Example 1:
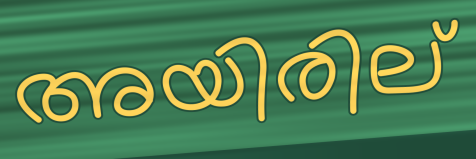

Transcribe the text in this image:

അയിരില്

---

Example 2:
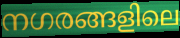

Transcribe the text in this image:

നഗരങ്ങളിലെ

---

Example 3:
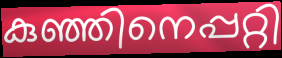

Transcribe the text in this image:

കുഞ്ഞിനെപ്പറ്റി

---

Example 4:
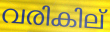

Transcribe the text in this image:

വരികില്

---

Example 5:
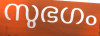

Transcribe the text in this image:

സുഭഗം